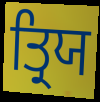
ਤ੍ਰਿਯ